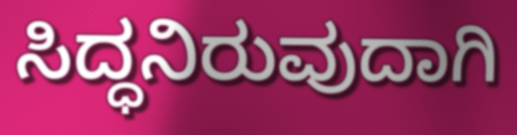
ಸಿದ್ಧನಿರುವುದಾಗಿ